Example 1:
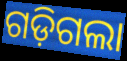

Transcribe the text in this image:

ଗଡ଼ିଗଲା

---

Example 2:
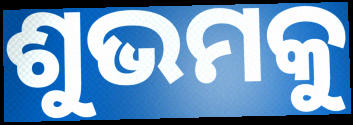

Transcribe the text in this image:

ଶୁଭମକୁ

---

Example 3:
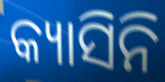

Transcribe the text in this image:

କ୍ୟାସିନି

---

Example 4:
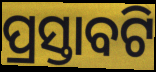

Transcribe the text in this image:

ପ୍ରସ୍ତାବଟି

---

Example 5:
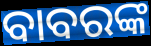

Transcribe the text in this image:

ବାବରଙ୍କ